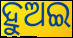
ହୁଅଇ